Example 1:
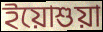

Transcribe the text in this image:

ইয়োশুয়া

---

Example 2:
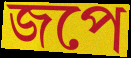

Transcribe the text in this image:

জপে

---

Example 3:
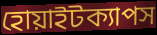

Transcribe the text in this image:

হোয়াইটক্যাপস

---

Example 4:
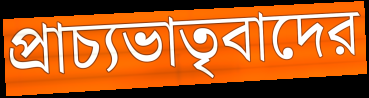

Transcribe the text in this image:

প্রাচ্যভাতৃবাদের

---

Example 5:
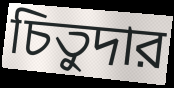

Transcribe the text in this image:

চিতুদার